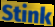
Stink